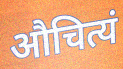
औचित्यं